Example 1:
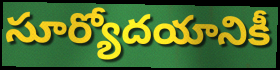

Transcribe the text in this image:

సూర్యోదయానికీ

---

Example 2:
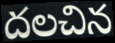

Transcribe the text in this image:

దలచిన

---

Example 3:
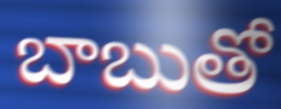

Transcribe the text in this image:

బాబుతో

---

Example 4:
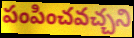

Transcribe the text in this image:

పంపించవచ్చని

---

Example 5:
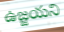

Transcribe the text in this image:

ఉజ్జయని